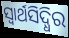
ସ୍ଵାର୍ଥସିଦ୍ଧିର